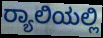
ರ‍್ಯಾಲಿಯಲ್ಲಿ